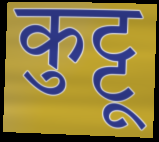
कुट्टू